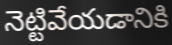
నెట్టివేయడానికి